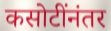
कसोटींनंतर